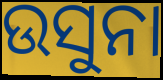
ଉସୁନା